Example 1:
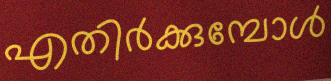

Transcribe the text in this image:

എതിർക്കുമ്പോൾ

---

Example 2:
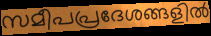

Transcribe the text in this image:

സമീപപ്രദേശങ്ങളിൽ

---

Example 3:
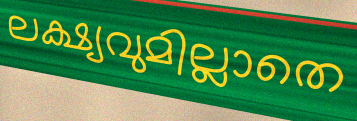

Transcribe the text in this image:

ലക്ഷ്യവുമില്ലാതെ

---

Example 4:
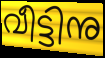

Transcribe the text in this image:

വീട്ടിനു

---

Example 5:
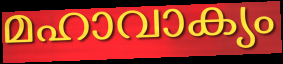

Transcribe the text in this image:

മഹാവാക്യം